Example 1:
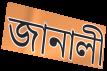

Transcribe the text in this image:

জানালী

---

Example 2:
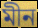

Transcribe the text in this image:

মীন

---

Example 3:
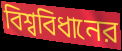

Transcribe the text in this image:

বিশ্ববিধানের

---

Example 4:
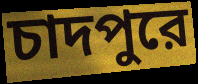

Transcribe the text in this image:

চাদপুরে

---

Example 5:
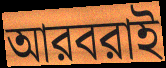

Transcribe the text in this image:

আরবরাই